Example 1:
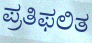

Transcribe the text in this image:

ಪ್ರತಿಫಲಿತ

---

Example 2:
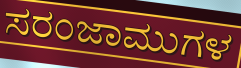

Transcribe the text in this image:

ಸರಂಜಾಮುಗಳ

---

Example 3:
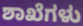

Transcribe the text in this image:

ಶಾಖೆಗಳು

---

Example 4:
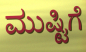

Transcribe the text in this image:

ಮುಷ್ಟಿಗೆ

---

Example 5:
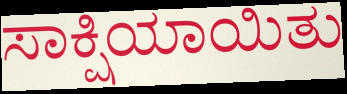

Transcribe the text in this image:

ಸಾಕ್ಷಿಯಾಯಿತು